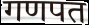
गणपत